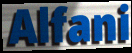
Alfani